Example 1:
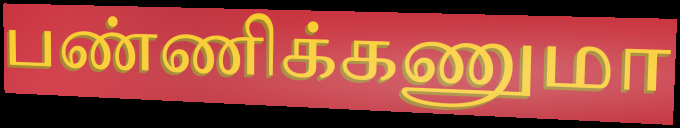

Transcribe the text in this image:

பண்ணிக்கணுமா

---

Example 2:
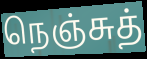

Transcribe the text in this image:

நெஞ்சுத்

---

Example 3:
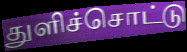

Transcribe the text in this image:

துளிச்சொட்டு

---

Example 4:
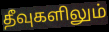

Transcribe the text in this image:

தீவுகளிலும்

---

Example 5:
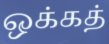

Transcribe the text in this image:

ஒக்கத்